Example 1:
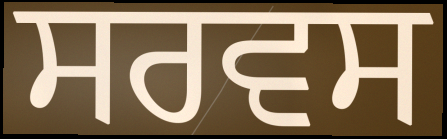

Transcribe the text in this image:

ਸਰਵਸ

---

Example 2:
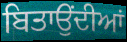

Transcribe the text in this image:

ਬਿਤਾਉਂਦੀਆਂ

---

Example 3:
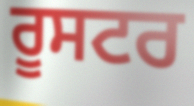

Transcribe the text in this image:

ਰੂਸਟਰ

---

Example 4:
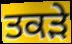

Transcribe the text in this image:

ਤਕੜੇ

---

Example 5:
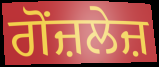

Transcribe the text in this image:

ਗੋਂਜ਼ਲੇਜ਼